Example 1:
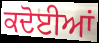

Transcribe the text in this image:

ਕਦੋਈਆਂ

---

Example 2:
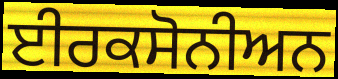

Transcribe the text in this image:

ਈਰਕਸੋਨੀਅਨ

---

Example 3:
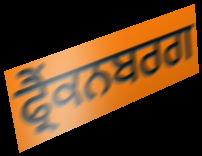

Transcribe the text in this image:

ਫ੍ਰੈਂਕਨਬਰਗ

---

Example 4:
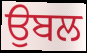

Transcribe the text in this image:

ਉਬਲ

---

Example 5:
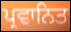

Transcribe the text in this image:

ਪ੍ਰਵਾਨਿਤ